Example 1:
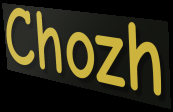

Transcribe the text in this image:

Chozh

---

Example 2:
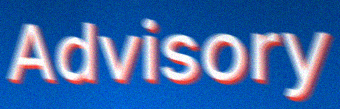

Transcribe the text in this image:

Advisory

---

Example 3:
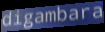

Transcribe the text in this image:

digambara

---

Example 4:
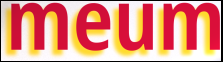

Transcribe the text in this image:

meum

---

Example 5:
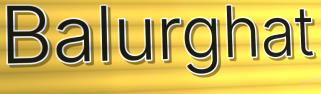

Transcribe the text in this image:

Balurghat